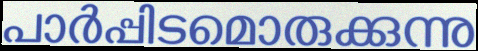
പാർപ്പിടമൊരുക്കുന്നു